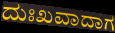
ದುಃಖವಾದಾಗ